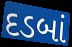
દડબાં